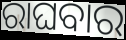
ରାଘବାର